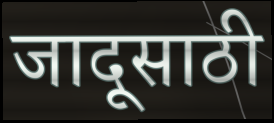
जादूसाठी